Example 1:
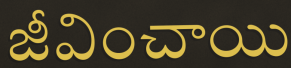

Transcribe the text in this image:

జీవించాయి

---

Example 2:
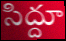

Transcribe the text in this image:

సిద్దూ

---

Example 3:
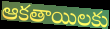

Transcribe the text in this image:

ఆకతాయిలకు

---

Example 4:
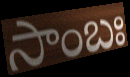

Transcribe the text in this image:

సాంబః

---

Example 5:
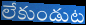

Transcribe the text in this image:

లేకుండుట